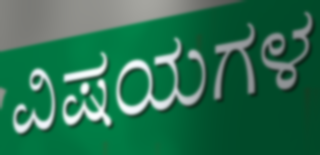
ವಿಷಯಗಳ